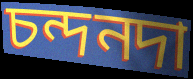
চন্দনদা